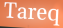
Tareq